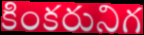
కింకరునిగ